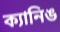
ক্যানিঙ